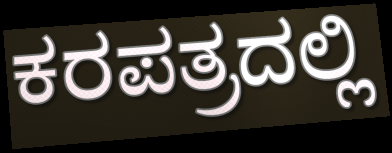
ಕರಪತ್ರದಲ್ಲಿ